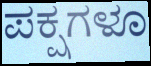
ಪಕ್ಷಗಳೂ